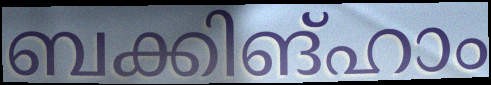
ബക്കിങ്ഹാം